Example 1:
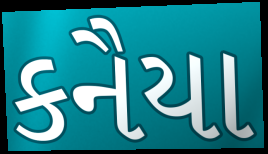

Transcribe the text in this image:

કનૈયા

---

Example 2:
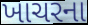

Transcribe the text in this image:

ખાચરના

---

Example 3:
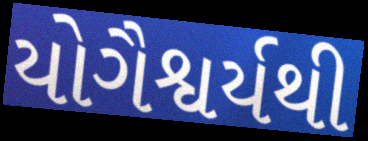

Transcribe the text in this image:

યોગૈશ્વર્યથી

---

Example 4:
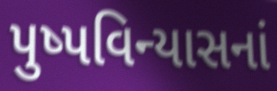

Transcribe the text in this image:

પુષ્પવિન્યાસનાં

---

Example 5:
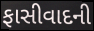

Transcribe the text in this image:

ફાસીવાદની